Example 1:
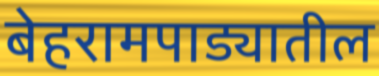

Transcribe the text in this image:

बेहरामपाड्यातील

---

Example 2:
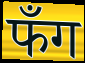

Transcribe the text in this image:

फँग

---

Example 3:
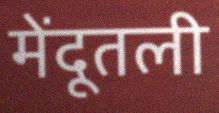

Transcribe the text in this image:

मेंदूतली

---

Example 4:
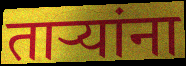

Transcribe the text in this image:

ताऱ्यांना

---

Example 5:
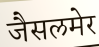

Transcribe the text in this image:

जैसलमेर